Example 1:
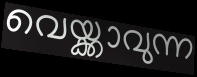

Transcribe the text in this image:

വെയ്ക്കാവുന്ന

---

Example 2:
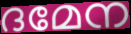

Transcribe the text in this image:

ദമേന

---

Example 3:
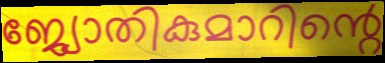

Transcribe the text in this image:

ജ്യോതികുമാറിന്റെ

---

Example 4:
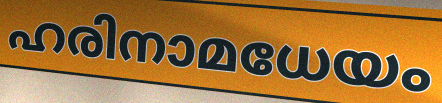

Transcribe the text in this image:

ഹരിനാമധേയം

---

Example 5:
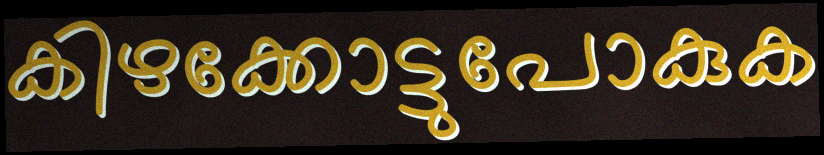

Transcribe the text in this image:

കിഴക്കോട്ടുപോകുക